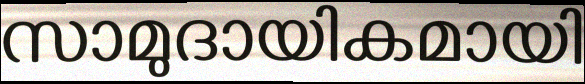
സാമുദായികമായി